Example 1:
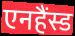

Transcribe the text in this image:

एनहैंस्ड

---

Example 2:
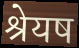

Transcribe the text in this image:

श्रेयष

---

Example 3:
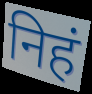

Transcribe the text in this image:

निहं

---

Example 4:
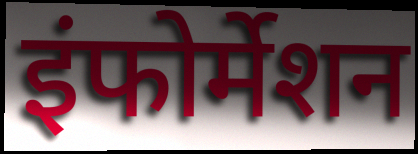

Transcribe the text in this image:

इंफोर्मेशन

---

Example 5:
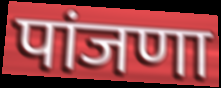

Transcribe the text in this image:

पांजणा